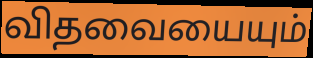
விதவையையும்